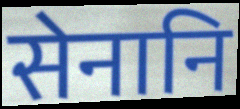
सेनानि